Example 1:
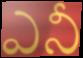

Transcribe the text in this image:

ఎనీ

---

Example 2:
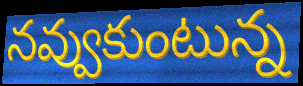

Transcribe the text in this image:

నవ్వుకుంటున్న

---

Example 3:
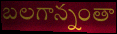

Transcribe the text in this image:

బలగాన్నంతా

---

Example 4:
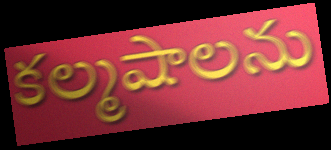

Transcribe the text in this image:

కల్మషాలను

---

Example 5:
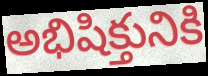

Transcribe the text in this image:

అభిషిక్తునికి